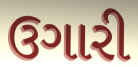
ઉગારી